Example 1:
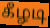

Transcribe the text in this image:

கீழடி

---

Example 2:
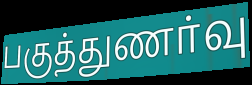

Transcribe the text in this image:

பகுத்துணர்வு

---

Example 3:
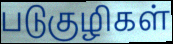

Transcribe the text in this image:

படுகுழிகள்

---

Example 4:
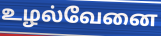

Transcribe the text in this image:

உழல்வேனை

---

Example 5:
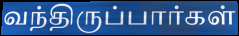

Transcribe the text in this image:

வந்திருப்பார்கள்